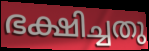
ഭക്ഷിച്ചതു